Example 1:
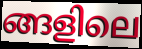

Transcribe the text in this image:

ങ്ങളിലെ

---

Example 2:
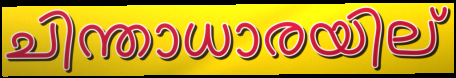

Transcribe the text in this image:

ചിന്താധാരയില്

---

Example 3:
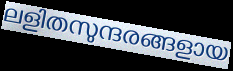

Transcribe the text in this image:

ലളിതസുന്ദരങ്ങളായ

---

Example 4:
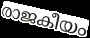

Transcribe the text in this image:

രാജകീയം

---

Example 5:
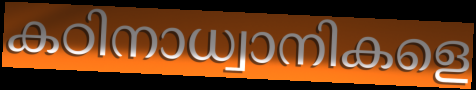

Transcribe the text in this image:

കഠിനാധ്വാനികളെ